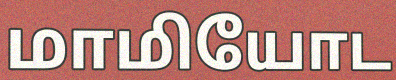
மாமியோட